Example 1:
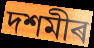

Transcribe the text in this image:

দশমীৰ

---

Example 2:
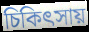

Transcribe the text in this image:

চিকিৎসায়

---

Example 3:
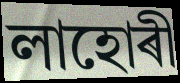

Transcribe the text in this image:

লাহোৰী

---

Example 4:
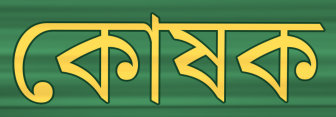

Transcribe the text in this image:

কোষক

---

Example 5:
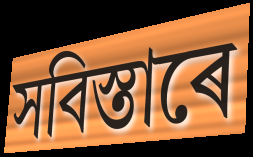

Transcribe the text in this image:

সবিস্তাৰে